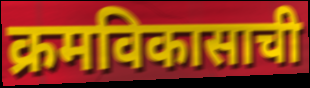
क्रमविकासाची